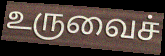
உருவைச்